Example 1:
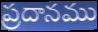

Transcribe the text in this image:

ప్రదానము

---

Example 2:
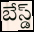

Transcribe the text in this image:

బేస్డ్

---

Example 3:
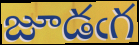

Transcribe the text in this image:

జూడఁగ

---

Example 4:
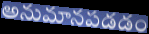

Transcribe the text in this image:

అనుమానపడడం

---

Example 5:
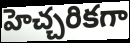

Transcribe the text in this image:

హెచ్చరికగా